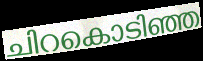
ചിറകൊടിഞ്ഞ